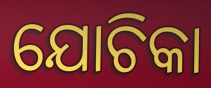
ଯୋଚିକା